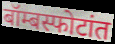
बॉम्बस्फोटांत